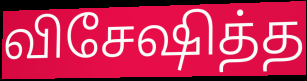
விசேஷித்த